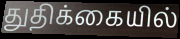
துதிக்கையில்